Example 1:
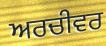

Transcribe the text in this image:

ਅਰਚੀਵਰ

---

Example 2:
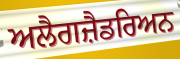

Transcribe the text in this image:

ਅਲੈਗਜ਼ੈਡਰਿਅਨ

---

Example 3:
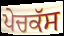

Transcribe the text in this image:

ਪੇਚਕੱਸ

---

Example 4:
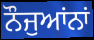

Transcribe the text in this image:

ਨੌਜੁਆਂਨਾਂ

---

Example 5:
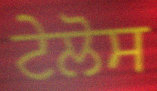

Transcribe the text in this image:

ਟੇਲੋਸ